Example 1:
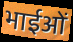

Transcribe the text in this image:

भाईओं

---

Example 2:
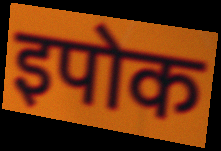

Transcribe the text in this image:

इपोक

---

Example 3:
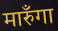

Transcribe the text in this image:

मारुँगा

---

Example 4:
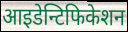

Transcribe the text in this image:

आइडेन्टिफिकेशन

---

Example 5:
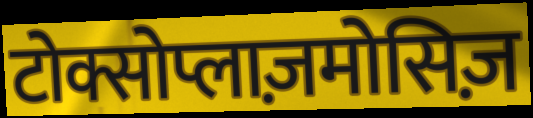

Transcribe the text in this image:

टोक्सोप्लाज़मोसिज़